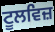
ਟੂਲਵਿਜ਼